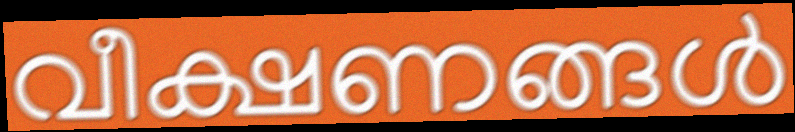
വീക്ഷണങ്ങൾ